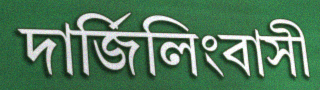
দার্জিলিংবাসী